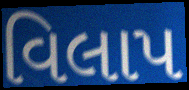
વિલાપ